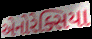
એનોરેક્સિયા